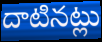
దాటినట్లు